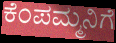
ಕೆಂಪಮ್ಮನಿಗೆ